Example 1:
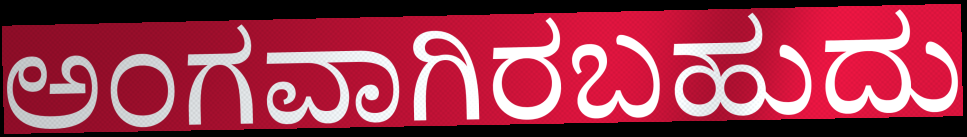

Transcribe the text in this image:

ಅಂಗವಾಗಿರಬಹುದು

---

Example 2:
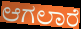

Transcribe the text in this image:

ಆಗಲಾರೆ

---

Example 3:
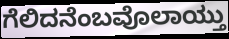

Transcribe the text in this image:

ಗೆಲಿದನೆಂಬವೊಲಾಯ್ತು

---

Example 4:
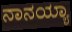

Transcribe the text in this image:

ನಾನಯ್ಯಾ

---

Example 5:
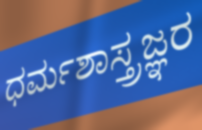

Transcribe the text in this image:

ಧರ್ಮಶಾಸ್ತ್ರಜ್ಞರ